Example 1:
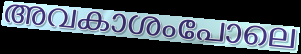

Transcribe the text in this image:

അവകാശംപോലെ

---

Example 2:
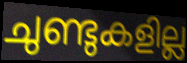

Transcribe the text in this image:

ചുണ്ടുകളില്ല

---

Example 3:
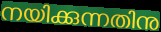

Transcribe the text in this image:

നയിക്കുന്നതിനു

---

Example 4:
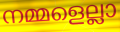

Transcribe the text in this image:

നമ്മളെല്ലാ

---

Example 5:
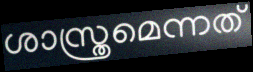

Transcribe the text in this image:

ശാസ്ത്രമെന്നത്